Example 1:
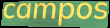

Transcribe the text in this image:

campos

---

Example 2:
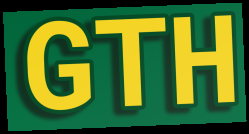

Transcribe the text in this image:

GTH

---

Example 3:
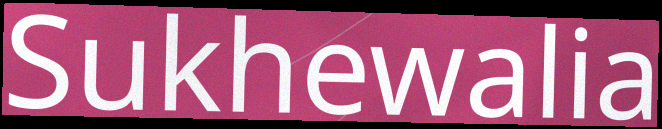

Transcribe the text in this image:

Sukhewalia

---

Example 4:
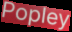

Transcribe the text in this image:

Popley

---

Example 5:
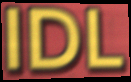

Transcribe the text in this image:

IDL